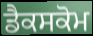
ਡੈਕਸਕੋਮ